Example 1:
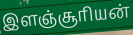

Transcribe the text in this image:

இளஞ்சூரியன்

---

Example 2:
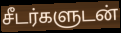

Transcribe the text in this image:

சீடர்களுடன்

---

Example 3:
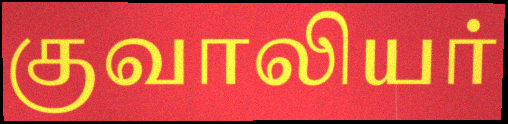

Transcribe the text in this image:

குவாலியர்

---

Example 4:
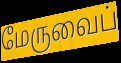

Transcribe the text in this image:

மேருவைப்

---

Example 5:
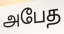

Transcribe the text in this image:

அபேத